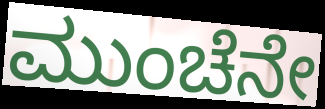
ಮುಂಚೆನೇ